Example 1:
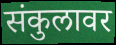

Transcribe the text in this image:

संकुलावर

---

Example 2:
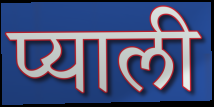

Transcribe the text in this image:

प्याली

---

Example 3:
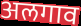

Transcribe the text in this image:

अलगाव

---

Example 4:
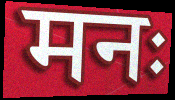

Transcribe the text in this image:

मनः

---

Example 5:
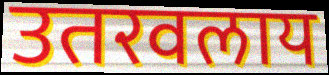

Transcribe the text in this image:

उतरवलाय